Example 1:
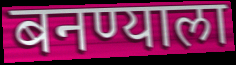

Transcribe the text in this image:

बनण्याला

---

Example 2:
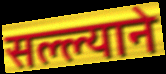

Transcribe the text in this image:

सल्ल्याने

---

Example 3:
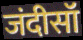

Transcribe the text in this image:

जंदीसॉ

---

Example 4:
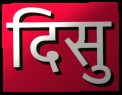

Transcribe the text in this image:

दिसु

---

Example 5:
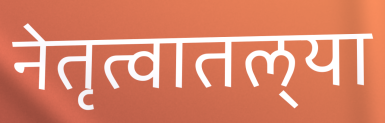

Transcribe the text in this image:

नेतृत्वातल्या